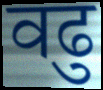
वढु